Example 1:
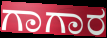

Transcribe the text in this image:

ಗಾಗಾರ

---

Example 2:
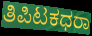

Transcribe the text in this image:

ತಿಪಿಟಕಧರಾ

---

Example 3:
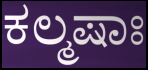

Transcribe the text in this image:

ಕಲ್ಮಷಾಃ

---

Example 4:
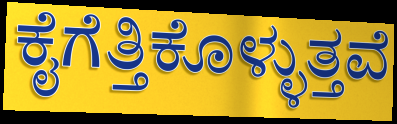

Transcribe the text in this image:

ಕೈಗೆತ್ತಿಕೊಳ್ಳುತ್ತವೆ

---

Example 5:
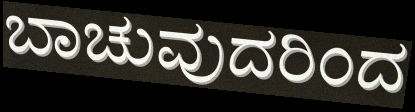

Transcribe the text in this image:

ಬಾಚುವುದರಿಂದ